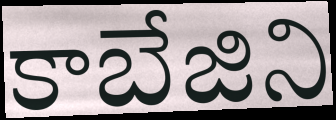
కాబేజిని